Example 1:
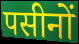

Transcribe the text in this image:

पसीनों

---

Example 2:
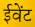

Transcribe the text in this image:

ईवेंट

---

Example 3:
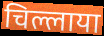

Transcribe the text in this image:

चिल्लाया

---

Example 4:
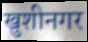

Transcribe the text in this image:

खुशीनगर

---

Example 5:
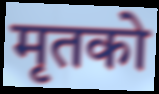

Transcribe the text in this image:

मृतको